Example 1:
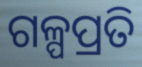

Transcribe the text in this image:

ଗଳ୍ପପ୍ରତି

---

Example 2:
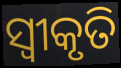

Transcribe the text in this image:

ସ୍ୱୀକୃତି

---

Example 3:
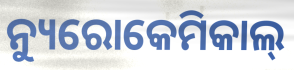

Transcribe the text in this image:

ନ୍ୟୁରୋକେମିକାଲ୍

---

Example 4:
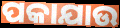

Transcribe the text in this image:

ପକାଯାଉ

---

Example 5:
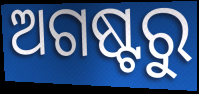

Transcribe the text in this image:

ଅଗଷ୍ଟରୁ